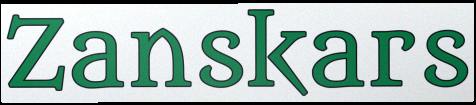
Zanskars